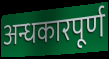
अन्धकारपूर्ण